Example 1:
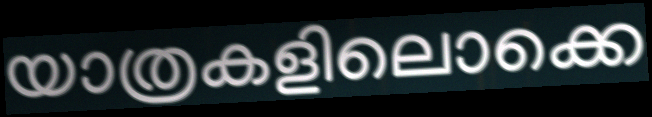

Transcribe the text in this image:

യാത്രകളിലൊക്കെ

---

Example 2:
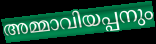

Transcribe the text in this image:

അമ്മാവിയപ്പനും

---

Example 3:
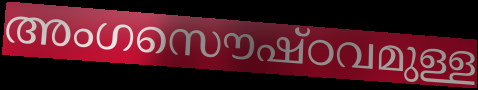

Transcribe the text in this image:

അംഗസൌഷ്ഠവമുള്ള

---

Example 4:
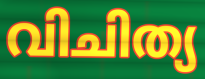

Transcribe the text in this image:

വിചിത്യ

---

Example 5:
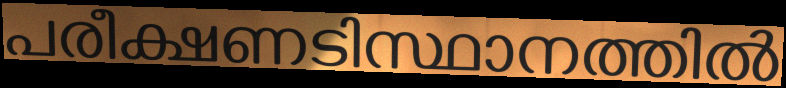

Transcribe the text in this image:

പരീക്ഷണടിസ്ഥാനത്തിൽ